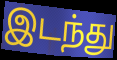
இடந்து